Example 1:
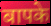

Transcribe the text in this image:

बापके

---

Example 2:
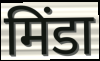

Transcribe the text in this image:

मिंडा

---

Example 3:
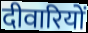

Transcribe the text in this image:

दीवारियों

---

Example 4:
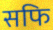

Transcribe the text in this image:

सफि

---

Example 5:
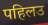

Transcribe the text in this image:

पहिलउ